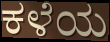
ಕಳೆಯ